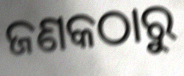
ଜଣକଠାରୁ